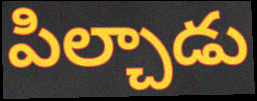
పిల్చాడు